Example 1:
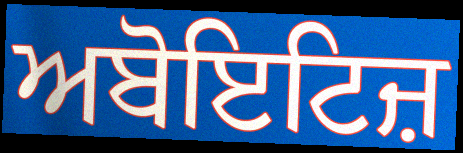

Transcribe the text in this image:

ਅਬੋਇਟਿਜ਼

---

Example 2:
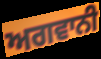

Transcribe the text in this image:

ਅਗਵਾਨੀ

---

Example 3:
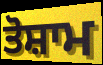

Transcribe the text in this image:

ਤੋਸ਼ਾਮ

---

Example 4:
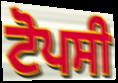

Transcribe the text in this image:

ਟੋਪਸੀ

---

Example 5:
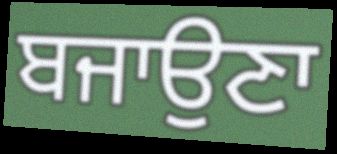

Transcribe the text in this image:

ਬਜਾਉਣਾ